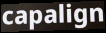
capalign